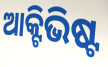
ଆକ୍ଟିଭିଷ୍ଟ